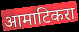
आमाटिकरा